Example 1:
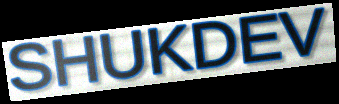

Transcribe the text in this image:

SHUKDEV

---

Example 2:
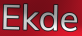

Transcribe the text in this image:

Ekde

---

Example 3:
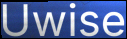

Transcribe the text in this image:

Uwise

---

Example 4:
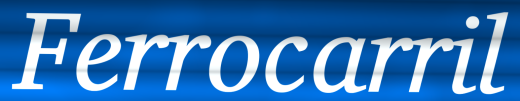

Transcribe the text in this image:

Ferrocarril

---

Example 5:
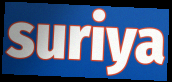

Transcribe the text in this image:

suriya